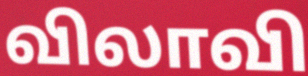
விலாவி